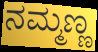
ನಮ್ಮಣ್ಣ